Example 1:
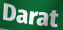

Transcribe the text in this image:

Darat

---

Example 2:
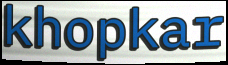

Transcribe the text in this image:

khopkar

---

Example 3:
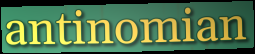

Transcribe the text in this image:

antinomian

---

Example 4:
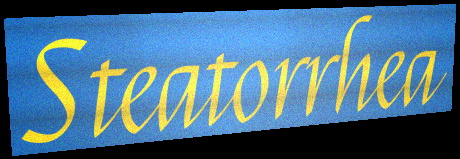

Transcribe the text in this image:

Steatorrhea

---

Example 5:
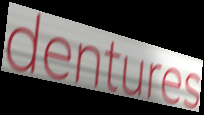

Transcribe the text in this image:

dentures